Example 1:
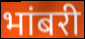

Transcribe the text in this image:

भांबरी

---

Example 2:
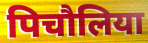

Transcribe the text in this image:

पिचौलिया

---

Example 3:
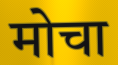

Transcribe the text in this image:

मोचा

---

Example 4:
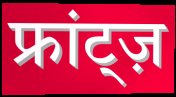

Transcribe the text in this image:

फ्रांट्ज़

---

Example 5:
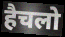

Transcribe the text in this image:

हैचलो